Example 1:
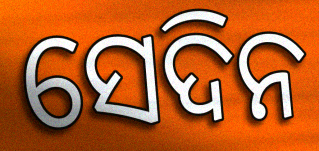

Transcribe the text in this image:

ସେଦିନ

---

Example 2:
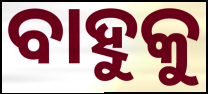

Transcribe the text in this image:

ବାହୁକୁ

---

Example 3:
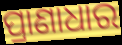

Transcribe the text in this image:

ପ୍ରାଣାଧାର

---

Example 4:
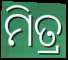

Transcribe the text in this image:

ମିତ୍ର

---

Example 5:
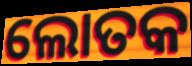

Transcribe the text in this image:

ଲୋତକ